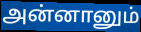
அன்னானும்